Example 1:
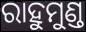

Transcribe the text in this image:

ରାହୁମୁଣ୍ଡ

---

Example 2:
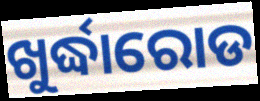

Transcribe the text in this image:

ଖୁର୍ଦ୍ଧାରୋଡ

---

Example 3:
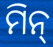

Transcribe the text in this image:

ମିନ୍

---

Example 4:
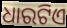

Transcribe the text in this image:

ଧାରଟିଏ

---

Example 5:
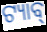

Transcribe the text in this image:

ଟ୍ୟାବ୍